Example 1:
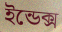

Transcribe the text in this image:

ইন্ডেক্স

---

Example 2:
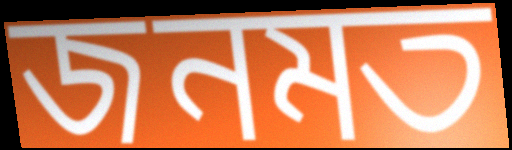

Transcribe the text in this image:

জনমত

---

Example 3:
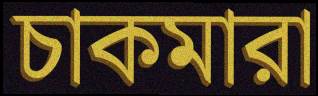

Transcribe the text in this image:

চাকমারা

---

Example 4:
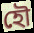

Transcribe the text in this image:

হৌ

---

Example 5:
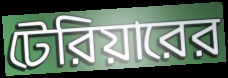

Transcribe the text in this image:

টেরিয়ারের